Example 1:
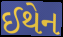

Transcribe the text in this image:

ઈથેન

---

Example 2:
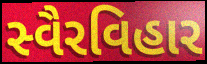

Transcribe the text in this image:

સ્વૈરવિહાર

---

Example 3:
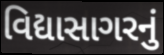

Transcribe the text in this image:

વિદ્યાસાગરનું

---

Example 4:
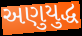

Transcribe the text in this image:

અણુયુદ્ધ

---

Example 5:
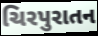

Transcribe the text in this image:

ચિરપુરાતન